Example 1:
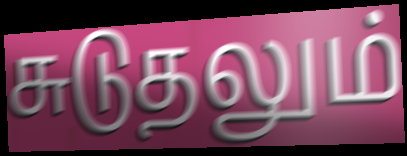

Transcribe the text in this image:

சுடுதலும்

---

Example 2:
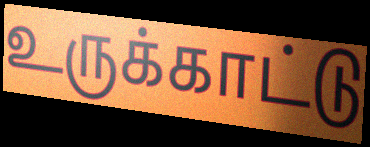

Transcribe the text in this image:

உருக்காட்டு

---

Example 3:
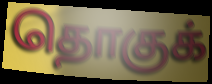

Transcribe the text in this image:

தொகுக்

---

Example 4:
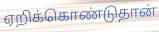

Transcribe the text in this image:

ஏறிக்கொண்டுதான்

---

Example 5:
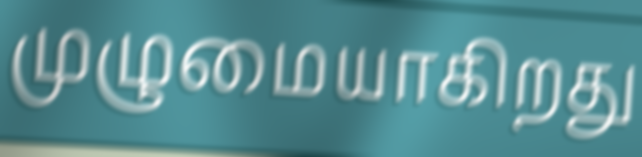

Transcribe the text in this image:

முழுமையாகிறது